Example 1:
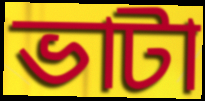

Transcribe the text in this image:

ভাটা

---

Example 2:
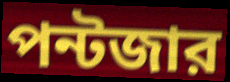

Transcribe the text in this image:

পন্টজার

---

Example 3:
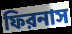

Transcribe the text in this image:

ফিরনাস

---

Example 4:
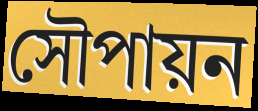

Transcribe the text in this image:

সৌপায়ন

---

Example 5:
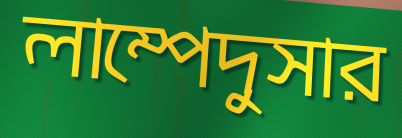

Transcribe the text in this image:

লাম্পেদুসার